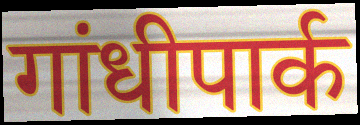
गांधीपार्क